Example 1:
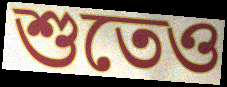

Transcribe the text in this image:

শুতেও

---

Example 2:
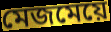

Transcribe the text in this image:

মেজমেয়ে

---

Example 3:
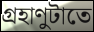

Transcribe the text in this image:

গ্রহাণুটাতে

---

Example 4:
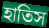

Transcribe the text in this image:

হাতিস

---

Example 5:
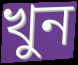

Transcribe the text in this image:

খুন